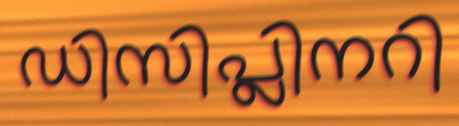
ഡിസിപ്ലിനറി